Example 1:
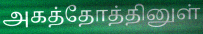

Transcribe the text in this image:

அகத்தோத்தினுள்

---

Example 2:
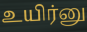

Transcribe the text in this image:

உயிர்னு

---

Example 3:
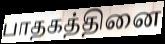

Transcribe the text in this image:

பாதகத்தினை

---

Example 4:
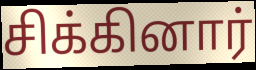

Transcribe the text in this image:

சிக்கினார்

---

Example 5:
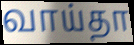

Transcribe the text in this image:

வாய்தா